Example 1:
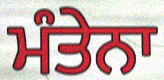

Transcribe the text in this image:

ਮੰਤੇਨਾ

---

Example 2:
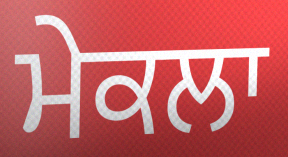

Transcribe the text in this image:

ਮੇਕਲਾ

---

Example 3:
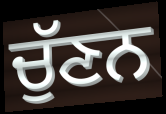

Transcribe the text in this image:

ਚੁੱਣਨ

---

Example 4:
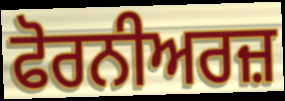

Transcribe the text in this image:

ਫੋਰਨੀਅਰਜ਼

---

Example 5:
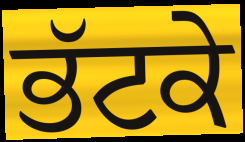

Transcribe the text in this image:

ਭੱਟਕੇ